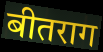
बीतराग